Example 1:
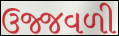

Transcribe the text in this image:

ઉજ્જવળી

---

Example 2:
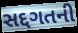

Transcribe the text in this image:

સદ્દગતની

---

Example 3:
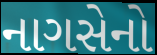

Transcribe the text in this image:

નાગસેનો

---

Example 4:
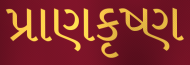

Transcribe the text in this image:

પ્રાણકૃષ્ણ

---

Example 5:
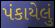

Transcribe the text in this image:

પંકાયેલું